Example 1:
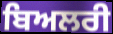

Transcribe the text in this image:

ਬਿਅਲਰੀ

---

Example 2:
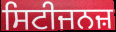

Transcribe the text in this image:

ਸਿਟੀਜਨਜ਼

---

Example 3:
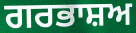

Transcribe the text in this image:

ਗਰਭਾਸ਼ਅ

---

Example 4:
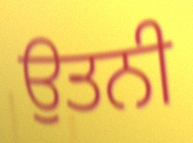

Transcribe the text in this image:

ਉਤਨੀ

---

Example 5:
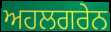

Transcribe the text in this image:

ਅਹਲਗਰੇਨ